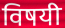
विषयी